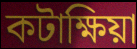
কটাক্ষিয়া